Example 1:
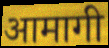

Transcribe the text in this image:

आमागी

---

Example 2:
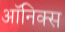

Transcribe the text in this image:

ऑनिक्स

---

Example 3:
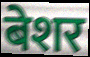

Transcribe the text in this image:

बेशर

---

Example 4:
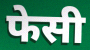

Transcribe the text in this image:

फेसी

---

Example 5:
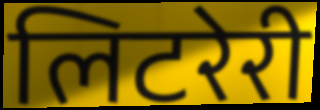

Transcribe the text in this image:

लिटरेरी